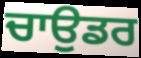
ਚਾਉਡਰ